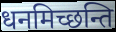
धनमिच्छन्ति